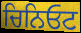
ਚਿਨਿਓਟ